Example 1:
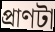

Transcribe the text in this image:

প্রাণটা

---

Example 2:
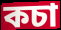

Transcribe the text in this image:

কচা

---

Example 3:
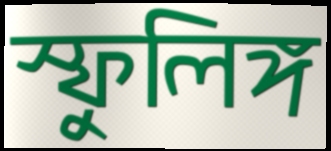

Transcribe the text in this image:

স্ফুলিঙ্গ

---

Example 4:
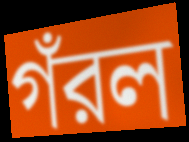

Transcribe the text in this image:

গঁরল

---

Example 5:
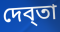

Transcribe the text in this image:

দেব্তা